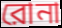
রোনা